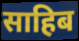
साहिब